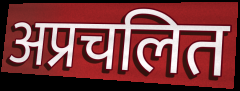
अप्रचलित